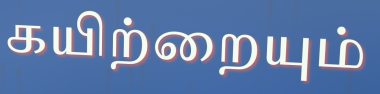
கயிற்றையும்